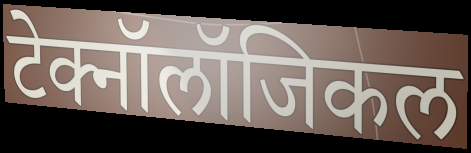
टेक्नॉलॉजिकल